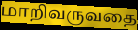
மாறிவருவதை